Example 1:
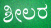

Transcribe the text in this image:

ಶೀಲರ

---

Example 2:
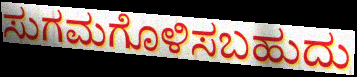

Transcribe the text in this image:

ಸುಗಮಗೊಳಿಸಬಹುದು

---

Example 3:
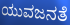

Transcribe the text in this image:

ಯುವಜನತೆ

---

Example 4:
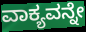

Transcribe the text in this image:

ವಾಕ್ಯವನ್ನೇ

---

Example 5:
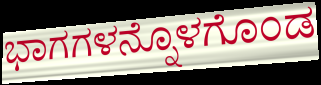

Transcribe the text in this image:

ಭಾಗಗಳನ್ನೊಳಗೊಂಡ